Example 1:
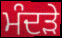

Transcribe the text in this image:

ਮੰਦੜੇ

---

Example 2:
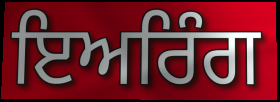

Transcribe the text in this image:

ਇਅਰਿੰਗ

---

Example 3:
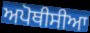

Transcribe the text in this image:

ਅਪੋਥੀਸੀਆ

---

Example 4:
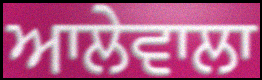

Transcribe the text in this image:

ਆਲੇਵਾਲਾ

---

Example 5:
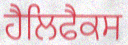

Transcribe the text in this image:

ਹੈਲਿਫੈਕਸ